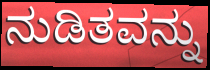
ನುಡಿತವನ್ನು